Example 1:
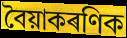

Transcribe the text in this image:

বৈয়াকৰণিক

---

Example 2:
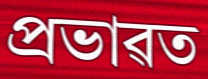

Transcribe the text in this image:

প্ৰভাৱত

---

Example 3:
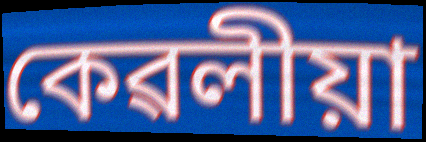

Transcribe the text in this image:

কেৱলীয়া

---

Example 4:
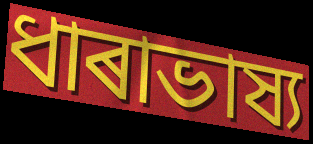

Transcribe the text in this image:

ধাৰাভাষ্য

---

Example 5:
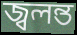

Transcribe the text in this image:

জ্বলন্ত